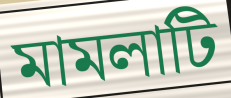
মামলাটি